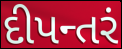
દીપન્તરં